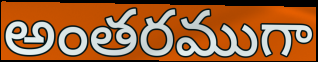
అంతరముగా